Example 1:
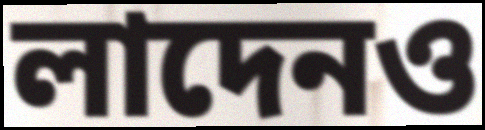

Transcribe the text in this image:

লাদেনও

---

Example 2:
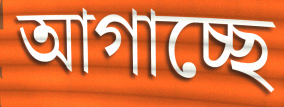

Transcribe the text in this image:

আগাচ্ছে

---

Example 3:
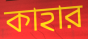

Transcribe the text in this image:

কাহার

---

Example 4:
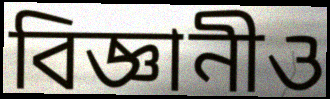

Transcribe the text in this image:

বিজ্ঞানীও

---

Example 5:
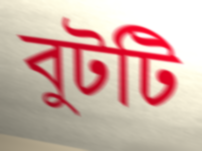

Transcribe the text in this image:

বুটটি